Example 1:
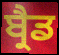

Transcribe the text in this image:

ਬ੍ਰੈਡ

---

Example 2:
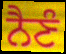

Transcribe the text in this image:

ਨੈਣੰ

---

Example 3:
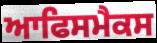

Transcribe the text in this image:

ਆਫਿਸਮੈਕਸ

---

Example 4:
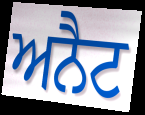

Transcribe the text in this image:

ਅਨੈਟ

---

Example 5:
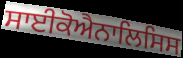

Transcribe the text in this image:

ਸਾਈਕੋਐਨਾਲਿਸਿਸ